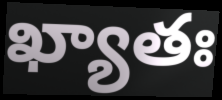
ఖ్యాతః